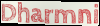
Dharmni